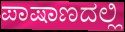
ಪಾಷಾಣದಲ್ಲಿ